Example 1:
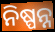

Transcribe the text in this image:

ନିଷ୍ପନ୍ନ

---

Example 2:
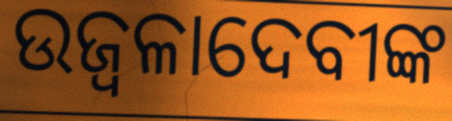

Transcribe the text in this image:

ଉଜ୍ୱଳାଦେବୀଙ୍କ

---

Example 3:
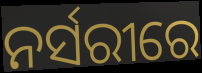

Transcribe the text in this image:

ନର୍ସରୀରେ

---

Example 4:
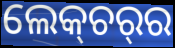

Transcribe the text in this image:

ଲେକ୍‌ଚର୍‌ର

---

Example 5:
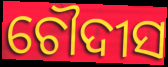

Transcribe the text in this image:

ଚୌଦୀସ